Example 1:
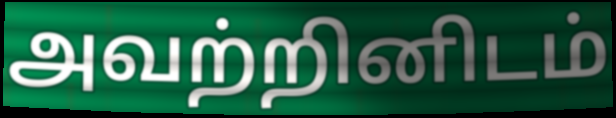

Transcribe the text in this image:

அவற்றினிடம்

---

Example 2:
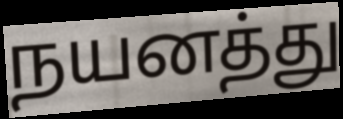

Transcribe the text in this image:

நயனத்து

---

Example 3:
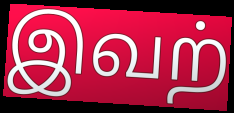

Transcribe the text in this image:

இவற்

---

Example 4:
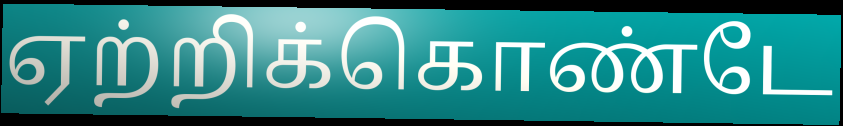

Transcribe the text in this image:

ஏற்றிக்கொண்டே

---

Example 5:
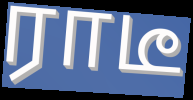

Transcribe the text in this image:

ராடீ